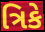
ત્રિકે